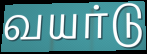
வயர்டு